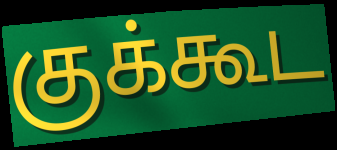
குக்கூட